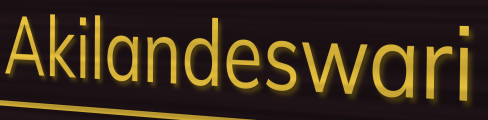
Akilandeswari